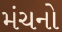
મંચનો